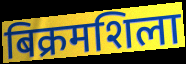
बिक्रमशिला